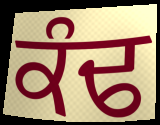
ਕੰਢ